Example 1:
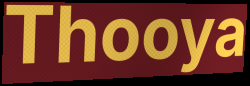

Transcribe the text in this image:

Thooya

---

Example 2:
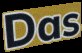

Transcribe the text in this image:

Das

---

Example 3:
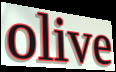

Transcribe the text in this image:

olive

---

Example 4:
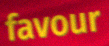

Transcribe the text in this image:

favour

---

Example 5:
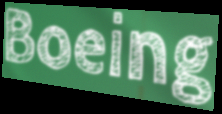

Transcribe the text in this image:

Boeing